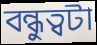
বন্ধুত্বটা